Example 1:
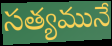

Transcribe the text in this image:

సత్యమునే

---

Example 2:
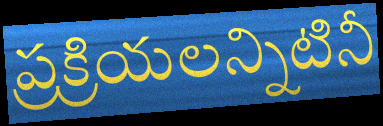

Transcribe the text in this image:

ప్రక్రియలన్నిటినీ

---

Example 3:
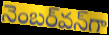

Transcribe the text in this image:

నెంబర్‌వన్‌గా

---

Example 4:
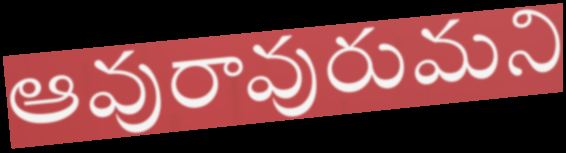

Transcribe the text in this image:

ఆవురావురుమని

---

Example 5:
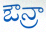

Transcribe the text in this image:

ఔన్రా